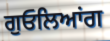
ਗੁਓਲਿਆਂਗ